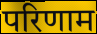
परिणाम